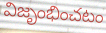
విజృంభించటం